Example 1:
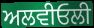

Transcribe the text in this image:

ਅਲਵੀਓਲੀ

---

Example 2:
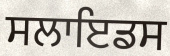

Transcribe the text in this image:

ਸਲਾਇਡਸ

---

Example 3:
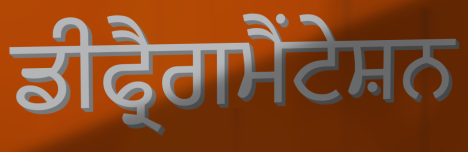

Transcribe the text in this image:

ਡੀਫ੍ਰੈਗਮੈਂਟੇਸ਼ਨ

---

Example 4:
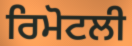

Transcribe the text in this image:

ਰਿਮੋਟਲੀ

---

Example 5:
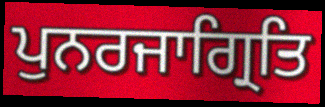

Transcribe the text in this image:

ਪੁਨਰਜਾਗ੍ਰਿਤਿ